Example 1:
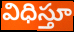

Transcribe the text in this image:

విధిస్తూ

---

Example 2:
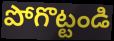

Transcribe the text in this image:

పోగొట్టండి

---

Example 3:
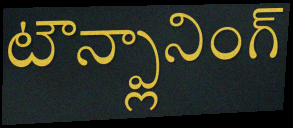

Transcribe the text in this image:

టౌన్ప్లానింగ్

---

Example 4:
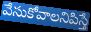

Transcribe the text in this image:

వేసుకోవాలనిపిస్తే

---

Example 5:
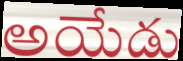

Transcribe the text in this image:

అయేడు